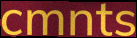
cmnts